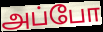
அப்போ